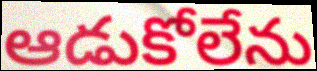
ఆడుకోలేను